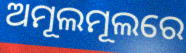
ଅମୂଲମୂଲରେ